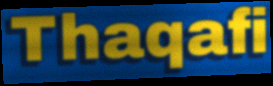
Thaqafi